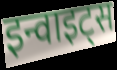
इन्वाइट्स